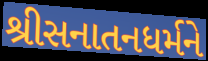
શ્રીસનાતનધર્મને